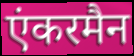
एंकरमैन